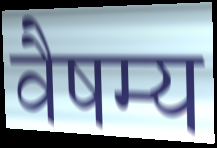
वैषम्य